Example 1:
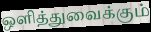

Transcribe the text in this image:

ஒளித்துவைக்கும்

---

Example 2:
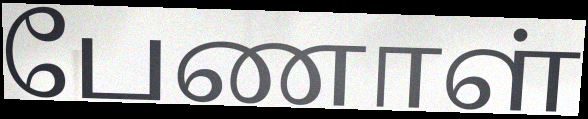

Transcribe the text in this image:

பேணாள்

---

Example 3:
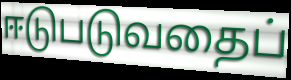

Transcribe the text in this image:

ஈடுபடுவதைப்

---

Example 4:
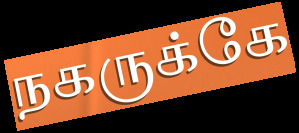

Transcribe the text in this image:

நகருக்கே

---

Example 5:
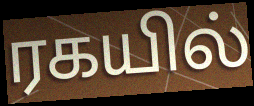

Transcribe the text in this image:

ரகயில்